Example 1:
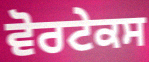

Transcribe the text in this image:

ਵੋਰਟੇਕਸ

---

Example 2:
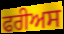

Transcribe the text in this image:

ਫਰੀਅਸ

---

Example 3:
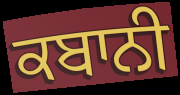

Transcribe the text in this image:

ਕਬਾਨੀ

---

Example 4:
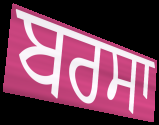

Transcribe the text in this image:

ਬਰਸਾ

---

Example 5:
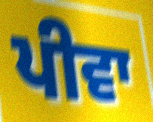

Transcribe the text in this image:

ਪੀਵਾ